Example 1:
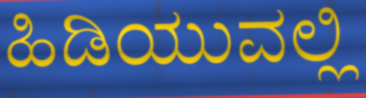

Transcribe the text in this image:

ಹಿಡಿಯುವಲ್ಲಿ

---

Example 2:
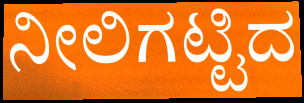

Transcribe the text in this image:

ನೀಲಿಗಟ್ಟಿದ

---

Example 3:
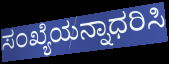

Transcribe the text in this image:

ಸಂಖ್ಯೆಯನ್ನಾಧರಿಸಿ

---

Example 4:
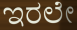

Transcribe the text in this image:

ಇರಲೇ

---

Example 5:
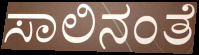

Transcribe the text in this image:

ಸಾಲಿನಂತೆ